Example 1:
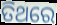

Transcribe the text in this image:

ତିଥରେ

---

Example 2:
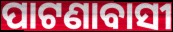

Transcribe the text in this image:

ପାଟଣାବାସୀ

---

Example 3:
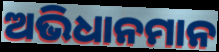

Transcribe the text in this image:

ଅଭିଧାନମାନ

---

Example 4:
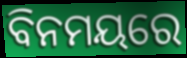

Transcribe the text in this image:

ବିନମୟରେ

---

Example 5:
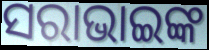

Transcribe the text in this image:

ସରାଭାଇଙ୍କ